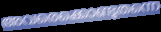
അവരെക്കൊണ്ടുതന്നെ